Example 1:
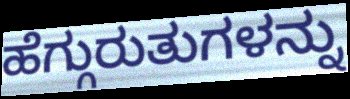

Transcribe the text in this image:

ಹೆಗ್ಗುರುತುಗಳನ್ನು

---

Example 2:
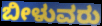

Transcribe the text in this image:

ಬೀಳುವರು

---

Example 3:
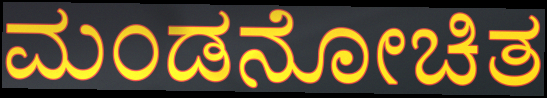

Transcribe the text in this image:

ಮಂಡನೋಚಿತ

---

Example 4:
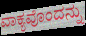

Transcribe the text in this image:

ವಾಕ್ಯವೊಂದನ್ನು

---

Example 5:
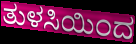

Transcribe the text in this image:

ತುಳಸಿಯಿಂದ